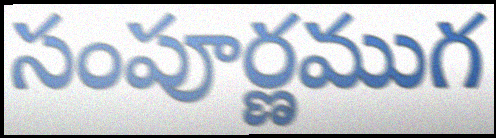
సంపూర్ణముగ